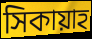
সিকায়াহ